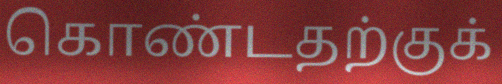
கொண்டதற்குக்